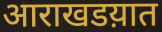
आराखडय़ात